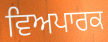
ਵਿਅਪਾਰਕ